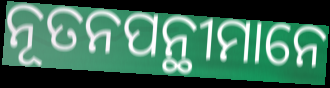
ନୂତନପନ୍ଥୀମାନେ